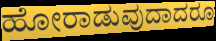
ಹೋರಾಡುವುದಾದರೂ